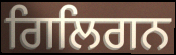
ਗਿਲਿਗਨ